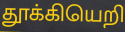
தூக்கியெறி